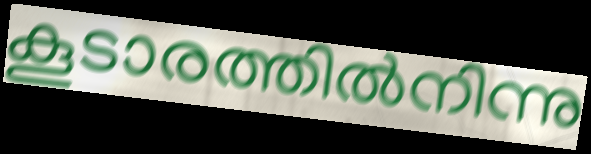
കൂടാരത്തിൽനിന്നു